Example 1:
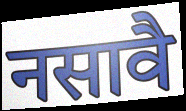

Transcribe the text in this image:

नसावै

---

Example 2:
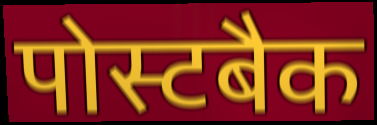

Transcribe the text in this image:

पोस्टबैक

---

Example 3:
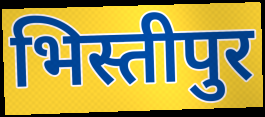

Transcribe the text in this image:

भिस्तीपुर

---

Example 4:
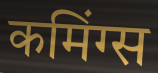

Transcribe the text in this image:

कमिंग्स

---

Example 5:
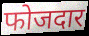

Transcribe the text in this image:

फोजदार